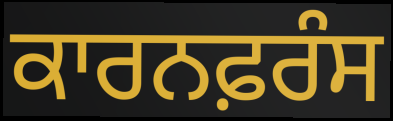
ਕਾਰਨਫ਼ਰੰਸ